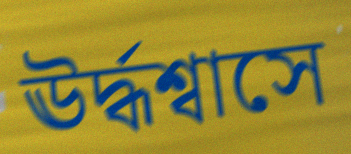
ঊর্দ্ধশ্বাসে